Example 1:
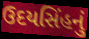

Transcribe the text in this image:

ઉદયસિંહનું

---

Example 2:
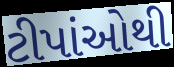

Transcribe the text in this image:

ટીપાંઓથી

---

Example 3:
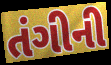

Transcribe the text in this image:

તંગીની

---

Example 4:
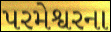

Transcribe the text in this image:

પરમેશ્વરના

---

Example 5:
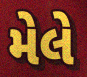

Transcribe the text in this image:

મેલે